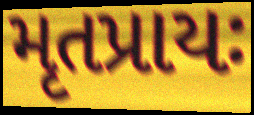
મૃતપ્રાયઃ